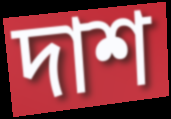
দাশ